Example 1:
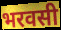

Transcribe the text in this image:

भरवसी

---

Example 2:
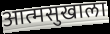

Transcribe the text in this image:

आत्मसुखाला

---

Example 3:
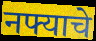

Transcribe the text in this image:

नफ्याचे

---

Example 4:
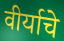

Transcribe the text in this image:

वीर्याचे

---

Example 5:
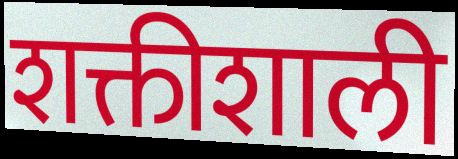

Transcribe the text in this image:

शक्तीशाली